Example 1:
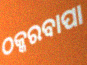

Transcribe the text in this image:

ଠକ୍କରବାପା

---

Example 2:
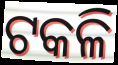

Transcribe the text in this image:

ଟକଳି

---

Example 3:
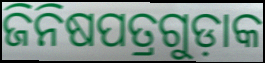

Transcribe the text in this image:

ଜିନିଷପତ୍ରଗୁଡ଼ାକ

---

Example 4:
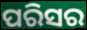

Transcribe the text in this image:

ପରିସର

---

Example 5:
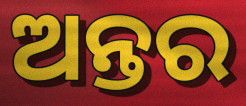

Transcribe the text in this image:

ଅନ୍ତର